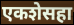
एकशेसहा